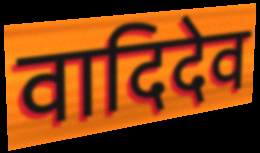
वादिदेव